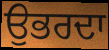
ਉਭਰਦਾ